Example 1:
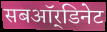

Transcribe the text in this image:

सबऑर्डिनेट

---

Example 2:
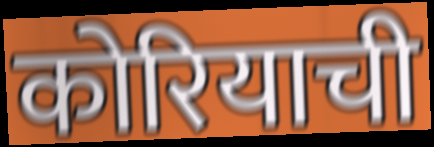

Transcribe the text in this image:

कोरियाची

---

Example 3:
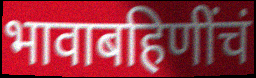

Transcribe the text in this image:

भावाबहिणींचं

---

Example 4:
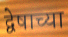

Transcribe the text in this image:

द्वेषाच्या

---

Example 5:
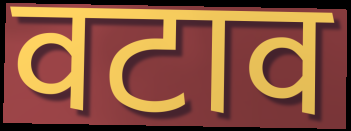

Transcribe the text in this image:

वटाव